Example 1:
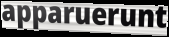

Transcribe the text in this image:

apparuerunt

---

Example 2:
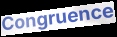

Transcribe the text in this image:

Congruence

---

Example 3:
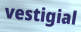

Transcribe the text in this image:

vestigial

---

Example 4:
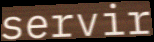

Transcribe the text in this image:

servir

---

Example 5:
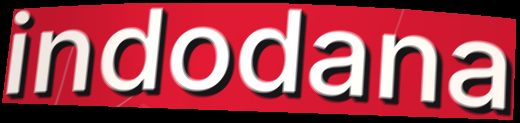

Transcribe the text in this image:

indodana